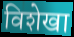
विशेखा